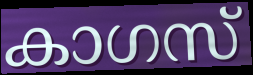
കാഗസ്